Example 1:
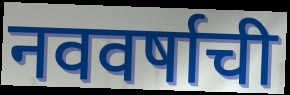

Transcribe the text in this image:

नववर्षाची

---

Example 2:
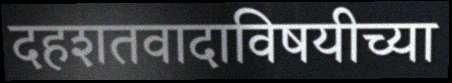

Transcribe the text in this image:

दहशतवादाविषयीच्या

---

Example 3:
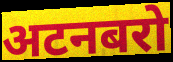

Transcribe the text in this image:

अटनबरो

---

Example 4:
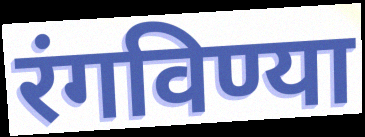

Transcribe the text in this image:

रंगविण्या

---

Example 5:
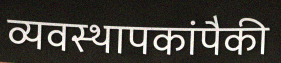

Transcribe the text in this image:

व्यवस्थापकांपैकी